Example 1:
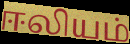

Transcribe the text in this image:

ஈலியம்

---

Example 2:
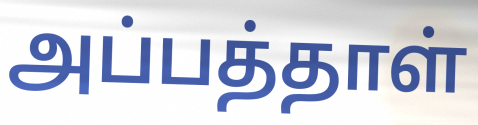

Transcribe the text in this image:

அப்பத்தாள்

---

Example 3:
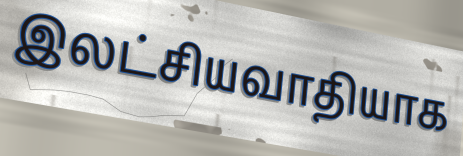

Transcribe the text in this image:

இலட்சியவாதியாக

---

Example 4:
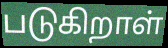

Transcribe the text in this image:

படுகிறாள்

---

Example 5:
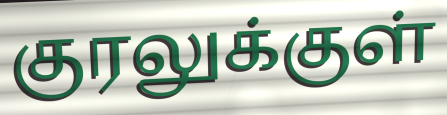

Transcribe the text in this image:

குரலுக்குள்